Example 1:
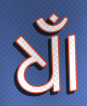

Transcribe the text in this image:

ଧାଁ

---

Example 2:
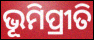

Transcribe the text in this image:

ଭୂମିପ୍ରୀତି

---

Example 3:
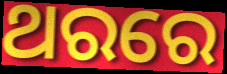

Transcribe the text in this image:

ଥରରେ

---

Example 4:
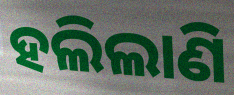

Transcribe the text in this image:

ହଲିଲାଣି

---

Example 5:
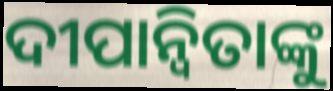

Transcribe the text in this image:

ଦୀପାନ୍ୱିତାଙ୍କୁ